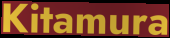
Kitamura